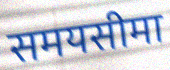
समयसीमा